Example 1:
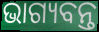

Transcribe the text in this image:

ଭାଗ୍ୟବନ୍ତ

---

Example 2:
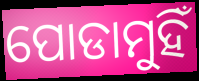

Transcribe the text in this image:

ପୋଡାମୁହିଁ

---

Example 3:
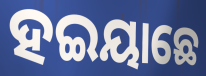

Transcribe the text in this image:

ହଇୟାଛେ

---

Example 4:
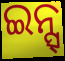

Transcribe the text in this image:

ଇନ୍ସ୍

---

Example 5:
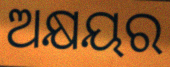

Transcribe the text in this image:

ଅକ୍ଷୟର